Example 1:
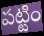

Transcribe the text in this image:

పట్టిం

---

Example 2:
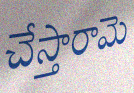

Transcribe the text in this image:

చేస్తారామె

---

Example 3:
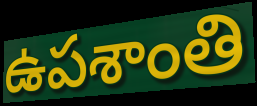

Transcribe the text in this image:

ఉపశాంతి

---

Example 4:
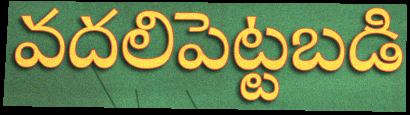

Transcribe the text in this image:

వదలిపెట్టబడి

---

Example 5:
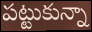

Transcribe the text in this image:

పట్టుకున్నా